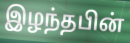
இழந்தபின்